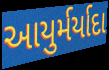
આયુર્મર્યાદા